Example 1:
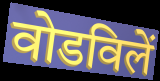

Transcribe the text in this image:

वोडविलें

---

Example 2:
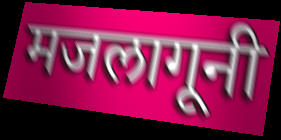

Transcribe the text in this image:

मजलागूनी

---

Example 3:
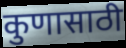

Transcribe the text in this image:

कुणासाठी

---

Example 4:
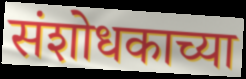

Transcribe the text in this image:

संशोधकाच्या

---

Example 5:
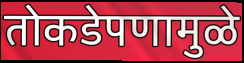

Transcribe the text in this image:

तोकडेपणामुळे